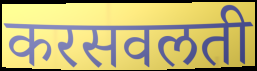
करसवलती